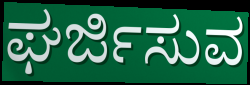
ಘರ್ಜಿಸುವ